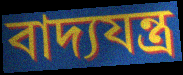
বাদ্যযন্ত্ৰ